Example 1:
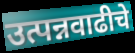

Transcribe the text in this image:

उत्पन्नवाढीचे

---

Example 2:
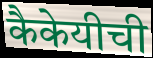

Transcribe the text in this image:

कैकेयीची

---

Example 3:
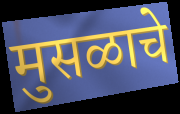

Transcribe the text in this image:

मुसळाचे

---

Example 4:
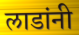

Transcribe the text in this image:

लाडांनी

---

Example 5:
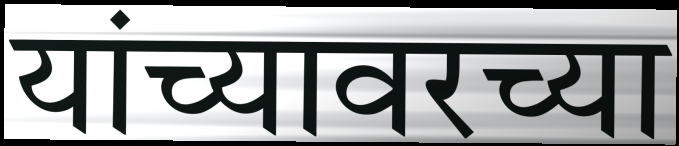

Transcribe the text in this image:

यांच्यावरच्या